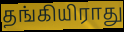
தங்கியிராது